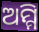
ଅମ୍ମି